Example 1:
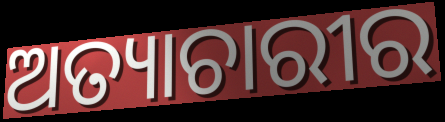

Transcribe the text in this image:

ଅତ୍ୟାଚାରୀର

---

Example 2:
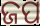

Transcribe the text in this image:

ଜପ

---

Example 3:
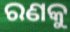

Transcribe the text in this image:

ରଣକୁ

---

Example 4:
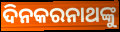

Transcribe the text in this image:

ଦିନକରନାଥଙ୍କୁ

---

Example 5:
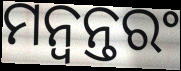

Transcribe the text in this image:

ମନ୍ବନ୍ତରଂ